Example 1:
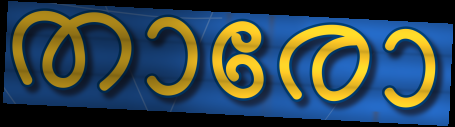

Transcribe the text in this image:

താരോ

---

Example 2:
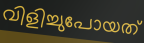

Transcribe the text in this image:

വിളിച്ചുപോയത്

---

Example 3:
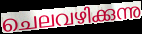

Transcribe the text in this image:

ചെലവഴിക്കുന്നു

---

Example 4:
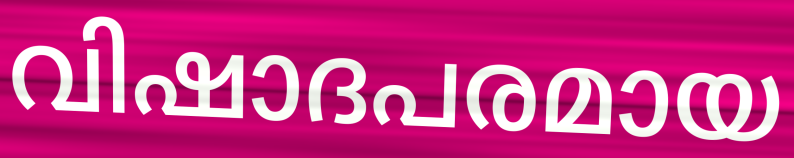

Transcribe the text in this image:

വിഷാദപരമായ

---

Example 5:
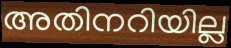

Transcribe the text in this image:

അതിനറിയില്ല